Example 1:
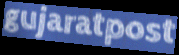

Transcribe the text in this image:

gujaratpost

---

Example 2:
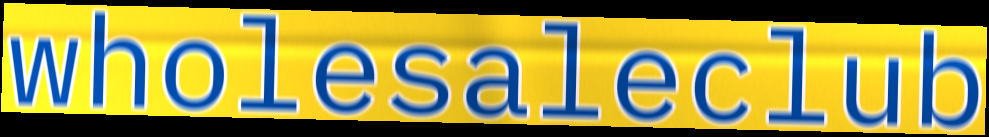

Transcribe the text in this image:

wholesaleclub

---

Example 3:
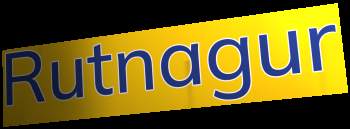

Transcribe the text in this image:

Rutnagur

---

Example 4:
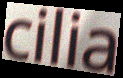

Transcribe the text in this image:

cilia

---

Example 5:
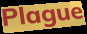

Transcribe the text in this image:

Plague